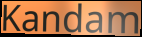
Kandam